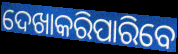
ଦେଖାକରିପାରିବେ